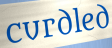
curdled